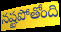
నష్టపోతోంది